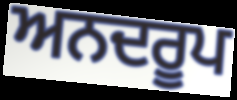
ਅਨਦਰੂਪ